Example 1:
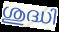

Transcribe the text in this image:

ശുദ്ധി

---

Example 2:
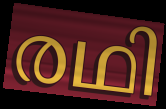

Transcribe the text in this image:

രഥി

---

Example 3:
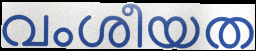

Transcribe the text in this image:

വംശീയത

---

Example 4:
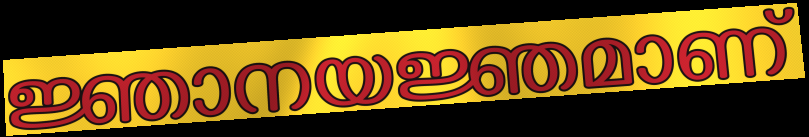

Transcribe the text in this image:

ജ്ഞാനയജ്ഞമാണ്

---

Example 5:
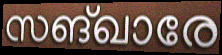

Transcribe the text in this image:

സങ്ഖാരേ